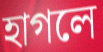
হাগলে